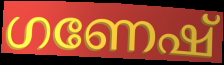
ഗണേഷ്